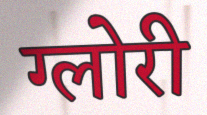
ग्लोरी